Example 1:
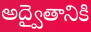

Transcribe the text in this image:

అద్వైతానికి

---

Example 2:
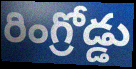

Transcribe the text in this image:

రింగ్రోడ్డు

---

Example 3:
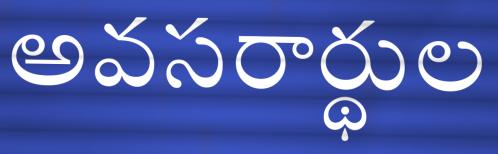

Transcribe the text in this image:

అవసరార్థుల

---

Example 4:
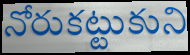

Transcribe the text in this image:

నోరుకట్టుకుని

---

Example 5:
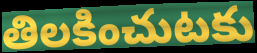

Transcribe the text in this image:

తిలకించుటకు